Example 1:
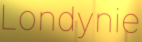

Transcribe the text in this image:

Londynie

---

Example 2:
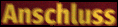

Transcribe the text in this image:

Anschluss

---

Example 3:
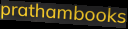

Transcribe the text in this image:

prathambooks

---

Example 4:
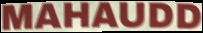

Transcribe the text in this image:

MAHAUDD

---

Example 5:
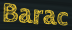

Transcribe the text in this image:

Barac